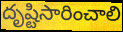
దృష్టిసారించాలి